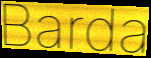
Barda